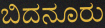
ಬಿದನೂರು